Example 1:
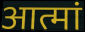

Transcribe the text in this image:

आत्मां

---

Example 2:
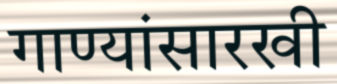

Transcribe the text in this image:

गाण्यांसारखी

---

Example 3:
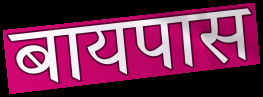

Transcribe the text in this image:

बायपास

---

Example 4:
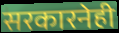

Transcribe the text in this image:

सरकारनेही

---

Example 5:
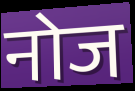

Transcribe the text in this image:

नोज